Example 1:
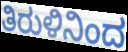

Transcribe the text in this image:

ತಿರುಳಿನಿಂದ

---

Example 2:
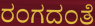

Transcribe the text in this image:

ರಂಗದಂತೆ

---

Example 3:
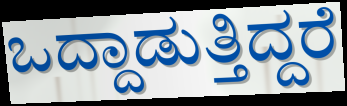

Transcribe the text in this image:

ಒದ್ದಾಡುತ್ತಿದ್ದರೆ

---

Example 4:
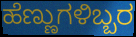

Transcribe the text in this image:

ಹೆಣ್ಣುಗಳಿಬ್ಬರ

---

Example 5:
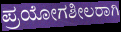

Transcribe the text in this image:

ಪ್ರಯೋಗಶೀಲರಾಗಿ